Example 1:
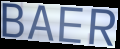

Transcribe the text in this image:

BAER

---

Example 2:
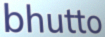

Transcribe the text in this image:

bhutto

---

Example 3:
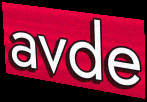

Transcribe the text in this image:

avde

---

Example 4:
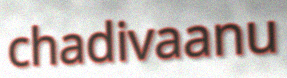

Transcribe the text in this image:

chadivaanu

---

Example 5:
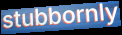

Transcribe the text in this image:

stubbornly